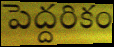
పెద్దరికం